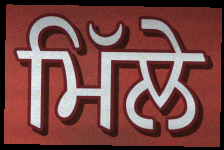
ਮਿੱਲੇ